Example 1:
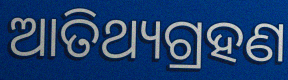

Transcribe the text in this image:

ଆତିଥ୍ୟଗ୍ରହଣ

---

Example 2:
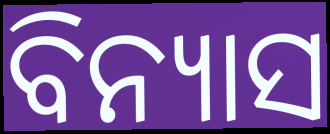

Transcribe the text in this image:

ବିନ୍ୟାସ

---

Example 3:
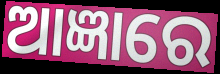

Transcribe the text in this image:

ଆଜ୍ଞାରେ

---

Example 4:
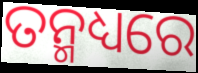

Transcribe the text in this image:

ତନ୍ମଧ୍ୟରେ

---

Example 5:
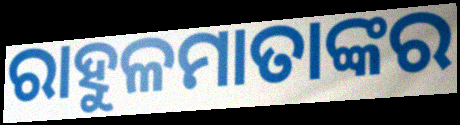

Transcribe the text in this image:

ରାହୁଳମାତାଙ୍କର